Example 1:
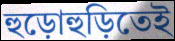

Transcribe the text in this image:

হুড়োহুড়িতেই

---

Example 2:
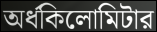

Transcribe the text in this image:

অর্ধকিলোমিটার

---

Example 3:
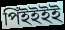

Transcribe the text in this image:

পিঁইইইই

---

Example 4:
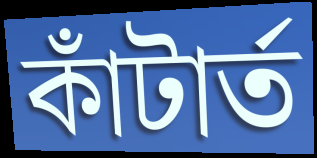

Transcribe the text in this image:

কাঁটার্ত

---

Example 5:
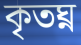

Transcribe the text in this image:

কৃতঘ্ন